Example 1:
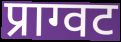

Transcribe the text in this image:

प्राग्वट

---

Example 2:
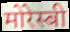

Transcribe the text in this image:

मोरेस्बी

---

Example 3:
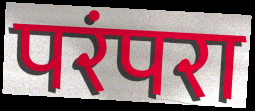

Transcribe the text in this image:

परंपरा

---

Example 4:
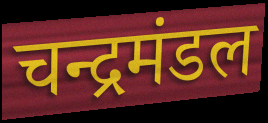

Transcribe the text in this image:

चन्द्रमंडल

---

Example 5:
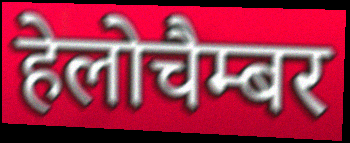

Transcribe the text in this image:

हेलोचैम्बर